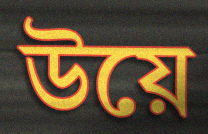
উয়ে